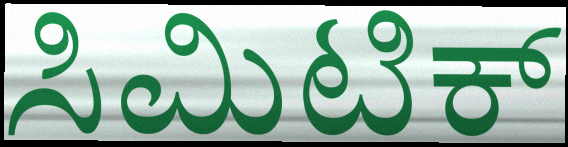
ಸಿಮಿಟಿಕ್